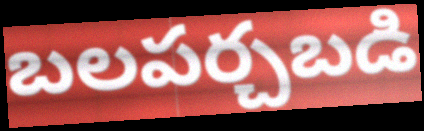
బలపర్చబడి